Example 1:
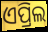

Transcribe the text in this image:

ଏପ୍ରିଲ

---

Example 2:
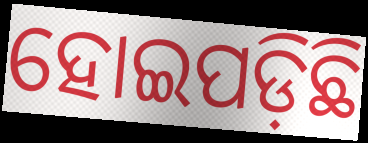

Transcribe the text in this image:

ହୋଇପଡ଼ିଛି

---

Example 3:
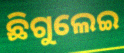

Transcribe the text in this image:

ଛିଗୁଲେଇ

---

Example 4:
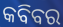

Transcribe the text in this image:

କବିବର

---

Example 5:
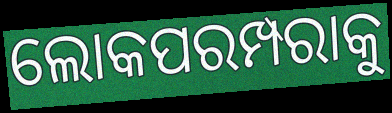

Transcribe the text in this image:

ଲୋକପରମ୍ପରାକୁ